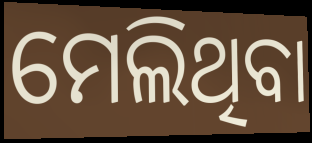
ମେଲିଥିବା